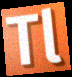
Tl